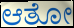
ಆತೋ